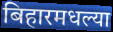
बिहारमधल्या